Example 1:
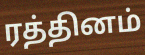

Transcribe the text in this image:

ரத்தினம்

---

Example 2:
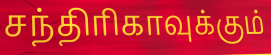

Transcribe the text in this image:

சந்திரிகாவுக்கும்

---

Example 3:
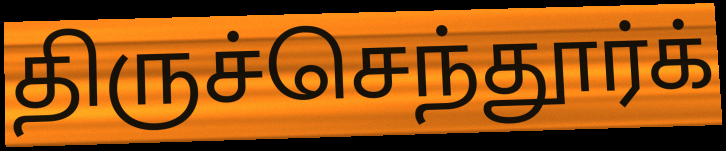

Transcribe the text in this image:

திருச்செந்தூர்க்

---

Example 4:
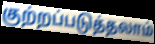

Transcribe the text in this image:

குற்றப்படுத்தலாம்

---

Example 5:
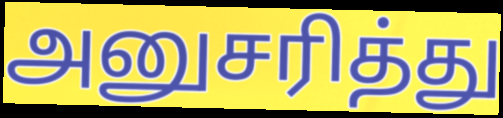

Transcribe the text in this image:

அனுசரித்து